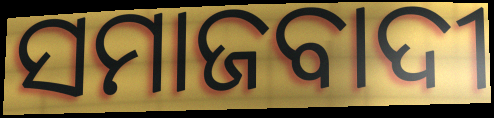
ସମାଜବାଦୀ